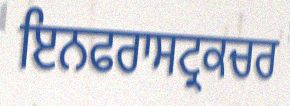
ਇਨਫਰਾਸਟ੍ਰਕਚਰ